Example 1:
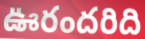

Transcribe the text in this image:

ఊరందరిది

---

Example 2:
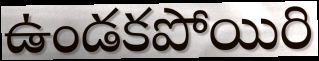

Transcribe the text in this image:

ఉండకపోయిరి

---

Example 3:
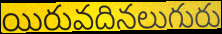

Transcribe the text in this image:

యిరువదినలుగురు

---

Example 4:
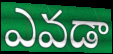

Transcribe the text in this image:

ఎవడా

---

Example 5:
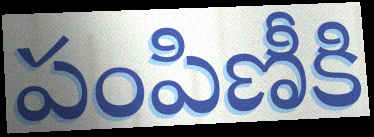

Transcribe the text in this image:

పంపిణీకి